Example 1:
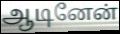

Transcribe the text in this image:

ஆடினேன்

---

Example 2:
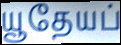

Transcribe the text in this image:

யூதேயப்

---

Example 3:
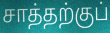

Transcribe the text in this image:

சாத்தற்குப்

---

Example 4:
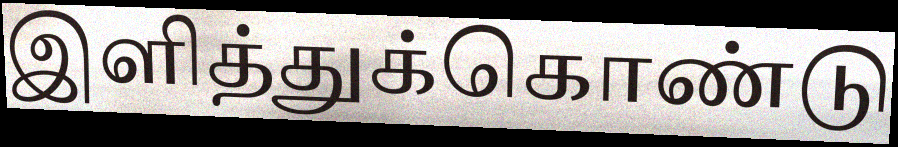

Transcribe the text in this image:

இளித்துக்கொண்டு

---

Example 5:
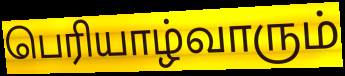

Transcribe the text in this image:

பெரியாழ்வாரும்